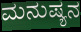
ಮನುಷ್ಯನ